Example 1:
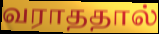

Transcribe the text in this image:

வராததால்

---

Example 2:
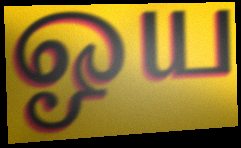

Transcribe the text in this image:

ஓய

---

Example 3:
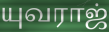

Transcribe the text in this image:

யுவராஜ்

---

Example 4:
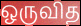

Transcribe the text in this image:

ஒருவித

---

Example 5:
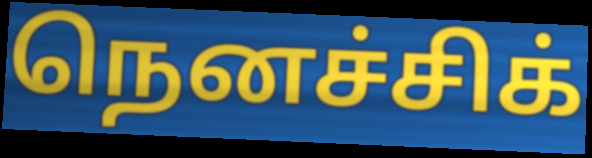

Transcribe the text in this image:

நெனச்சிக்